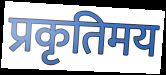
प्रकृतिमय